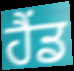
ਹੈਂਡ